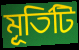
মূর্তিটি